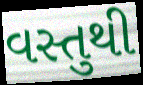
વસ્તુથી